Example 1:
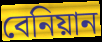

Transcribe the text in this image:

বেনিয়ান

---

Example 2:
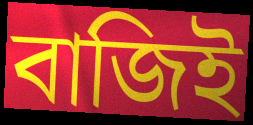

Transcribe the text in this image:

বাজিই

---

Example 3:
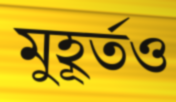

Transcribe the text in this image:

মুহূর্তও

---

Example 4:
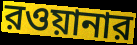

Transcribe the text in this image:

রওয়ানার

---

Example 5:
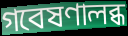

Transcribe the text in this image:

গবেষণালব্ধ